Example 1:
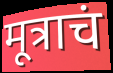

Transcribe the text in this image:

मूत्राचं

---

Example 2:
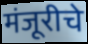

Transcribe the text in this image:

मंजूरीचे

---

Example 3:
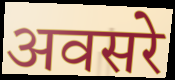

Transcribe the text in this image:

अवसरे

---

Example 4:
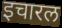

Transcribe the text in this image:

इचारल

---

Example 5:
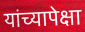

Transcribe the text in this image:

यांच्यापेक्षा